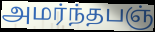
அமர்ந்தபஞ்